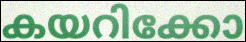
കയറിക്കോ